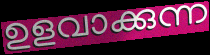
ഉളവാക്കുന്ന